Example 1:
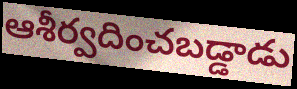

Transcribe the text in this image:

ఆశీర్వదించబడ్డాడు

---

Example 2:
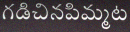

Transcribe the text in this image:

గడిచినపిమ్మట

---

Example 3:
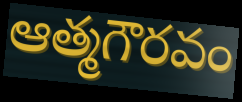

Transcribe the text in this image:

ఆత్మగౌరవం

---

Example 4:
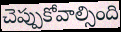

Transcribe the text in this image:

చెప్పుకోవాల్సింది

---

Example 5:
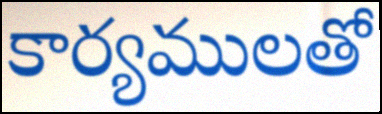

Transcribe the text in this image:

కార్యములతో